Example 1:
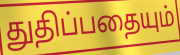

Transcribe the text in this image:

துதிப்பதையும்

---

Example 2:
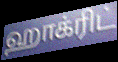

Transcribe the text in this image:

ஹாக்ரிட்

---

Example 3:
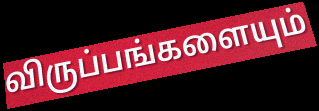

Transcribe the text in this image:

விருப்பங்களையும்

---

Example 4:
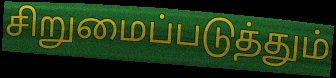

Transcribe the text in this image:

சிறுமைப்படுத்தும்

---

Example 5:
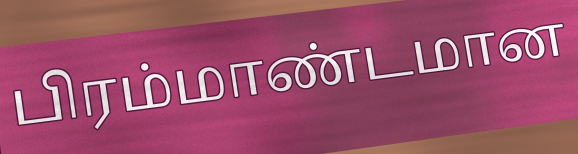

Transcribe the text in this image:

பிரம்மாண்டமான